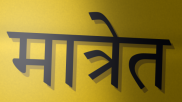
मात्रेत